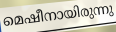
മെഷീനായിരുന്നു